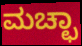
ಮಚ್ಛಾ